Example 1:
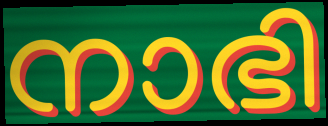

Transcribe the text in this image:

നാഭി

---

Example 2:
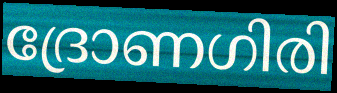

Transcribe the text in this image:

ദ്രോണഗിരി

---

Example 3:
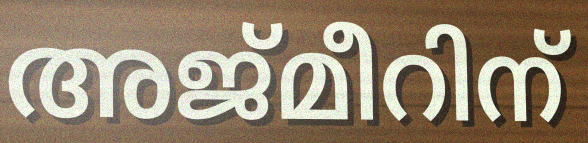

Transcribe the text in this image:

അജ്മീറിന്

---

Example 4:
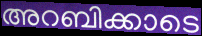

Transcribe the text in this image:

അറബിക്കാടെ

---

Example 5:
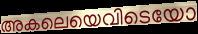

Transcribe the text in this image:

അകലെയെവിടെയോ